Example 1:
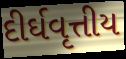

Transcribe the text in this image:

દીર્ઘવૃત્તીય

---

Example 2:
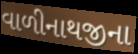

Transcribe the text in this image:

વાળીનાથજીના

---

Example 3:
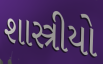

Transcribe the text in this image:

શાસ્ત્રીયો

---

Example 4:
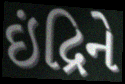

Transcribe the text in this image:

ઇંદ્રિને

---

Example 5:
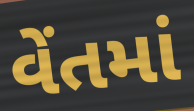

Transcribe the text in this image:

વેંતમાં